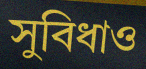
সুবিধাও